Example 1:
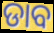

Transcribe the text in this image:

ଡାବ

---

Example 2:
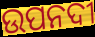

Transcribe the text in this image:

ଉପନଦୀ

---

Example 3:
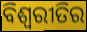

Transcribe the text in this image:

ବିଶ୍ଵରୀତିର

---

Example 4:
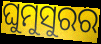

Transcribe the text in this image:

ଘୁମୁସୁରର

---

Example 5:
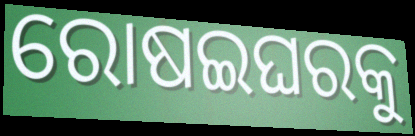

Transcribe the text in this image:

ରୋଷଇଘରକୁ